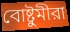
বোষ্টুমীরা